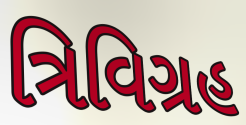
ત્રિવિગ્રહ